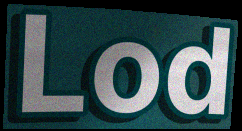
Lod